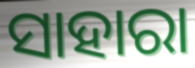
ସାହାରା